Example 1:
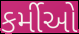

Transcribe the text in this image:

કર્મીઓ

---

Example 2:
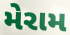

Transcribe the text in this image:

મેરામ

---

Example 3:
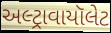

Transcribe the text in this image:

અલ્ટ્રાવાયૉલેટ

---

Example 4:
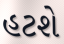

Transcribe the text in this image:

હટશે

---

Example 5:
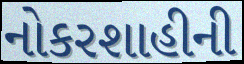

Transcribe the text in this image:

નોકરશાહીની